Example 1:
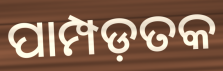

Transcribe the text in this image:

ପାମ୍ପଡ଼ତକ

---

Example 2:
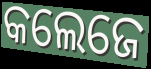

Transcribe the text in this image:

କଲେଜେ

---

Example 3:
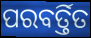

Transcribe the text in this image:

ପରବର୍ତ୍ତିତ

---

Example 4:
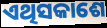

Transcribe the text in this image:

ଏଥିସକାଶେ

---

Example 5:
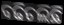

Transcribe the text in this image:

ବଢିଚଲିଛି